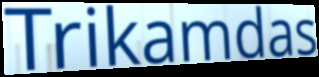
Trikamdas